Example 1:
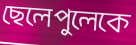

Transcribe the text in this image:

ছেলেপুলেকে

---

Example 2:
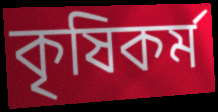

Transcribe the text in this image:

কৃষিকর্ম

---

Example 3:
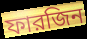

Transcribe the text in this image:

ফারজিন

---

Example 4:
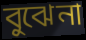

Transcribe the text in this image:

বুঝেনা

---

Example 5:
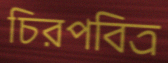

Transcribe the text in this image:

চিরপবিত্র